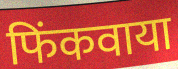
फिंकवाया